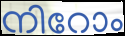
നിറോം